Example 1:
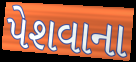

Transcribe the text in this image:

પેશવાના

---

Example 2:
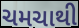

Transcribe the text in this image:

ચમચાથી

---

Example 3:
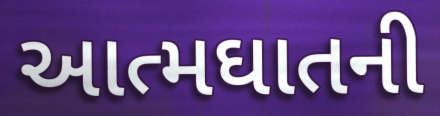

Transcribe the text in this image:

આત્મઘાતની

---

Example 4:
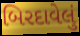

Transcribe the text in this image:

બિરદાવેલું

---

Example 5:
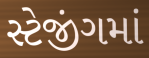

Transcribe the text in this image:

સ્ટેજીંગમાં